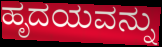
ಹೃದಯವನ್ನು